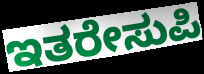
ಇತರೇಸುಪಿ